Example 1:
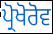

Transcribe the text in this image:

ਪ੍ਰੋਖੋਰੋਵ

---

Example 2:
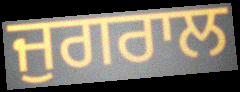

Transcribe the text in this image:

ਜੁਗਰਾਲ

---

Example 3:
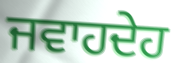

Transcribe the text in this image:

ਜਵਾਹਦੇਹ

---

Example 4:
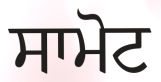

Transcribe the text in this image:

ਸਾਮੋਟ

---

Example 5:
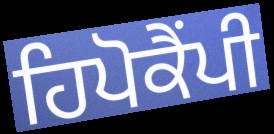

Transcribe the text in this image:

ਹਿਪੋਕੈਂਪੀ